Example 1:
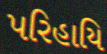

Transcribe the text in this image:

પરિહાયિ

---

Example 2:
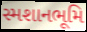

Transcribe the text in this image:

સ્મશાનભૂમિ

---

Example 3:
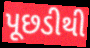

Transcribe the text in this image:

પૂછડીથી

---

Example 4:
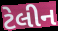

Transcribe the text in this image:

ટેલીન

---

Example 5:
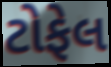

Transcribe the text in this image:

ટોફેલ